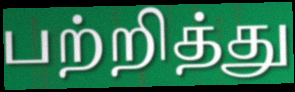
பற்றித்து